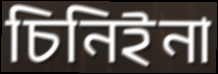
চিনিইনা